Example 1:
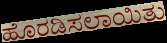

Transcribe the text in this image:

ಹೊರಡಿಸಲಾಯಿತು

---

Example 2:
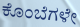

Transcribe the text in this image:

ಕೊಂಬೆಗಳೇ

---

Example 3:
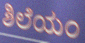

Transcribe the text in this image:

ಶಿಲೆಯಂ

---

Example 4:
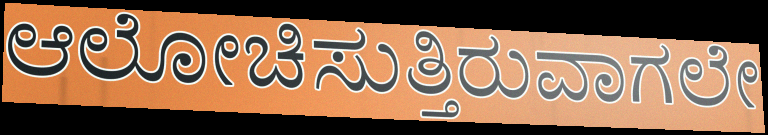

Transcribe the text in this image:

ಆಲೋಚಿಸುತ್ತಿರುವಾಗಲೇ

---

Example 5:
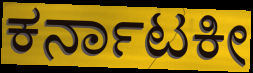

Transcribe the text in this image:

ಕರ್ನಾಟಕೀ